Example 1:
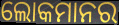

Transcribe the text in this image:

ଲୋକମାନର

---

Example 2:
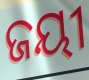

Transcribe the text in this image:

ଜୟୀ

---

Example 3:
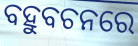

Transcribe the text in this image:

ବହୁବଚନରେ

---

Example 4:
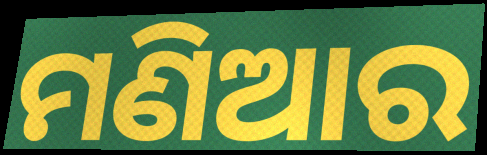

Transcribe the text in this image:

ମଣିଆର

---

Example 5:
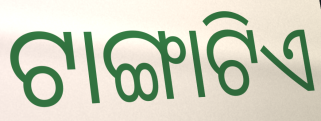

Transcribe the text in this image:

ଟାଙ୍ଗାଟିଏ